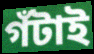
গঁটাই